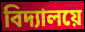
বিদ্যালয়ে